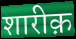
शारीक़